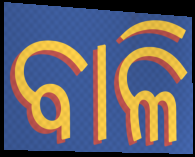
ବାଳି